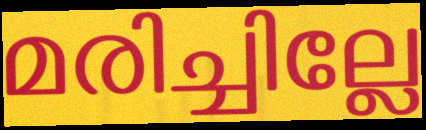
മരിച്ചില്ലേ